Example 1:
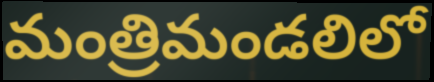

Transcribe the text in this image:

మంత్రిమండలిలో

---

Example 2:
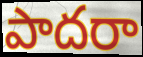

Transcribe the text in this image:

పాదరా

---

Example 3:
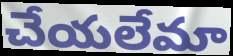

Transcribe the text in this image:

చేయలేమా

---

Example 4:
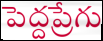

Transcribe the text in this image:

పెద్దప్రేగు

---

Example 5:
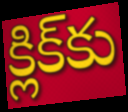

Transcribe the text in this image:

క్లిక్‌కు